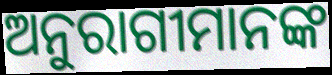
ଅନୁରାଗୀମାନଙ୍କ